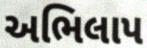
અભિલાપ